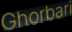
Ghorbari